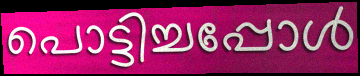
പൊട്ടിച്ചപ്പോൾ